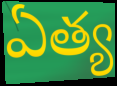
ఏత్య